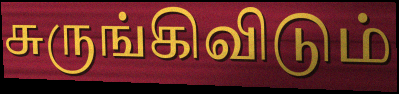
சுருங்கிவிடும்